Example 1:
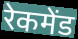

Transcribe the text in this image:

रेकमेंड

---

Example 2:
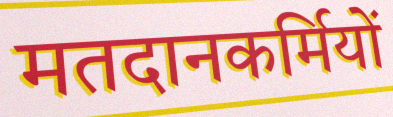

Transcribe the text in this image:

मतदानकर्मियों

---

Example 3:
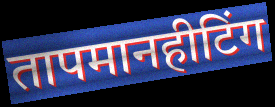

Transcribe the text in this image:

तापमानहीटिंग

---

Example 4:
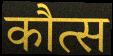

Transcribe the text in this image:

कौत्स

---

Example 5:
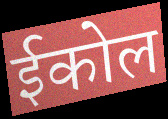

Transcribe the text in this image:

ईकोल